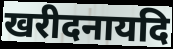
खरीदनायदि